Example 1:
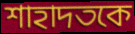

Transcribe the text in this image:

শাহাদতকে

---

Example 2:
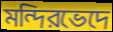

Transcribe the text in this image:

মন্দিরভেদে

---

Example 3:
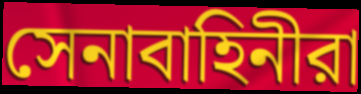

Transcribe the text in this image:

সেনাবাহিনীরা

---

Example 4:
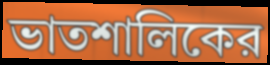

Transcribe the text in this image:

ভাতশালিকের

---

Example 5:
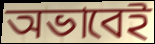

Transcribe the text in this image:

অভাবেই